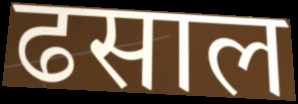
ढसाल